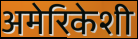
अमेरिकेशी